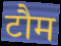
टौम